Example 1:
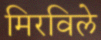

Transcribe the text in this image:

मिरविले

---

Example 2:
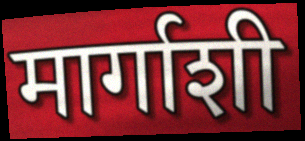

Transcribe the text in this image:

मार्गाशी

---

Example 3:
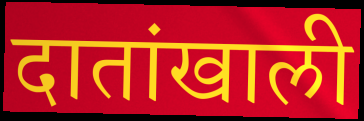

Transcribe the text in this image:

दातांखाली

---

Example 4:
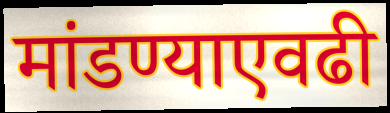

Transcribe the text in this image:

मांडण्याएवढी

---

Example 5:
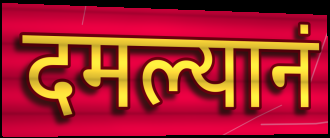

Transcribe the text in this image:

दमल्यानं